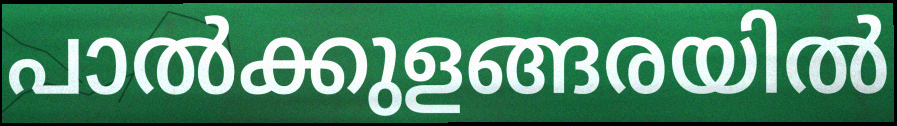
പാൽക്കുളങ്ങരയിൽ